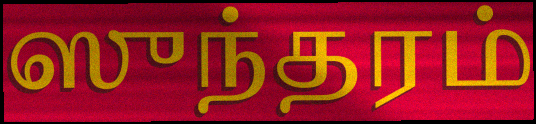
ஸுந்தரம்